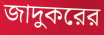
জাদুকরের